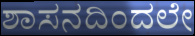
ಶಾಸನದಿಂದಲೇ